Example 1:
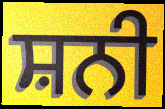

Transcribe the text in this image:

ਸ਼ਨੀ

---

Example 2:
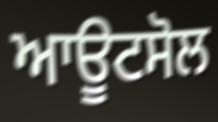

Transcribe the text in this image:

ਆਊਟਸੋਲ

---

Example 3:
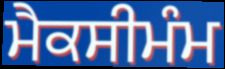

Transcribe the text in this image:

ਮੈਕਸੀਮੰਮ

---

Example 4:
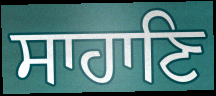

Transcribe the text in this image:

ਸਾਹਾਣਿ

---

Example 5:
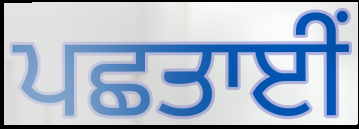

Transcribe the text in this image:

ਪਛਤਾਈਂ